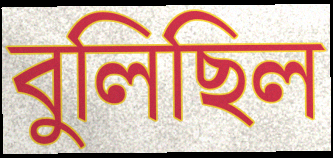
বুলিছিল